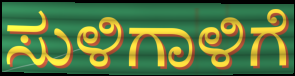
ಸುಳಿಗಾಳಿಗೆ